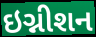
ઇગ્નીશન